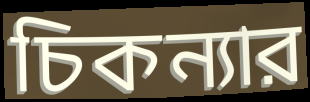
চিকন্যার